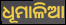
ଧୂମାଳିଆ